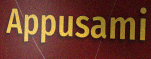
Appusami